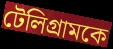
টেলিগ্রামকে